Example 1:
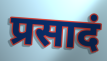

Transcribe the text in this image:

प्रसादं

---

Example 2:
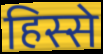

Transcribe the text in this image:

हिस्‍से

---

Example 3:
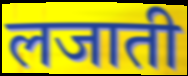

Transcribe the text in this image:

लजाती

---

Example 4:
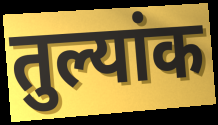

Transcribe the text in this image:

तुल्यांक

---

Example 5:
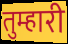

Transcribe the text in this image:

तुम्हारी